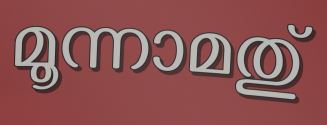
മൂന്നാമതു്